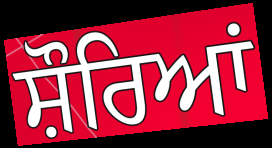
ਸ਼ੌਰਿਆਂ